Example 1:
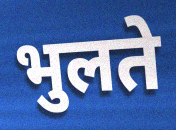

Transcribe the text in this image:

भुलते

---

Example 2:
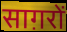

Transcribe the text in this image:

साग़रों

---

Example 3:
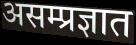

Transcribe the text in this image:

असम्प्रज्ञात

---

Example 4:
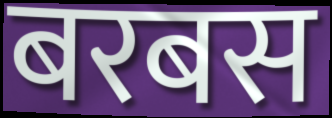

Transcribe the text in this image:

बरबस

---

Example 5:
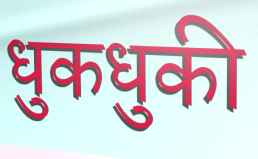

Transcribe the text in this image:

धुकधुकी